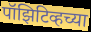
पॉझिटिव्हच्या